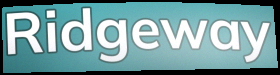
Ridgeway